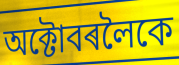
অক্টোবৰলৈকে